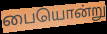
பையொன்று